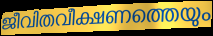
ജീവിതവീക്ഷണത്തെയും